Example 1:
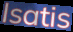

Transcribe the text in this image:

Isatis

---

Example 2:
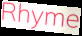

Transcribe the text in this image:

Rhyme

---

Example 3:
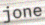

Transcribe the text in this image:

jone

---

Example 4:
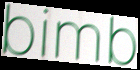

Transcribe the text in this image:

bimb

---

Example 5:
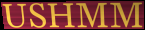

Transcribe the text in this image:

USHMM